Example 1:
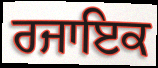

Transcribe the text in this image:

ਰਜਾਇਕ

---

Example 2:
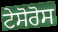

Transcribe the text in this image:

ਟੇਸੋਰੋਸ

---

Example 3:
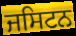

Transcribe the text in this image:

ਜਸਿਟਨ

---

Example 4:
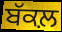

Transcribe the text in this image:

ਬੱਕਲ਼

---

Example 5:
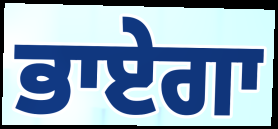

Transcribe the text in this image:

ਭਾਏਗਾ